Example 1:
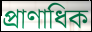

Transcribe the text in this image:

প্রাণাধিক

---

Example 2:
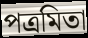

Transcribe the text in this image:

পত্রমিতা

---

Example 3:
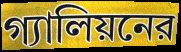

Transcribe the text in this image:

গ্যালিয়নের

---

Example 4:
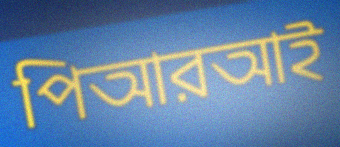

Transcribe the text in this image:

পিআরআই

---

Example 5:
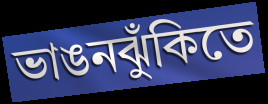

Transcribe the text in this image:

ভাঙনঝুঁকিতে